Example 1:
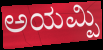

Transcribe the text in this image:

ಅಯಮ್ಪಿ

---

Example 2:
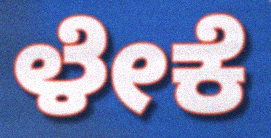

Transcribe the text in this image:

ಳೇಕೆ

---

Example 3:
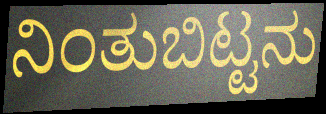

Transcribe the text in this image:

ನಿಂತುಬಿಟ್ಟನು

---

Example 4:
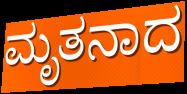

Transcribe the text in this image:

ಮೃತನಾದ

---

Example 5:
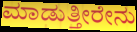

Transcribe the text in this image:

ಮಾಡುತ್ತೀರೇನು